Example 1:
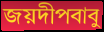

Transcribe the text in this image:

জয়দীপবাবু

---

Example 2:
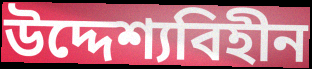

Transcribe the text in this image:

উদ্দেশ্যবিহীন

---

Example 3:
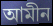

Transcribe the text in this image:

আমীন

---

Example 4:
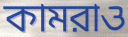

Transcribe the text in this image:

কামরাও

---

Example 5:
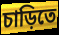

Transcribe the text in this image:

চাড়িতে